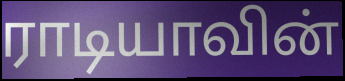
ராடியாவின்